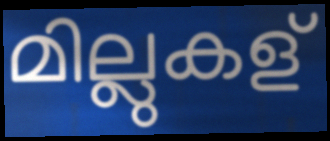
മില്ലുകള്